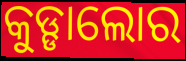
କୁଡ୍ଡାଲୋର